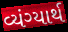
વ્યંગ્યાર્થ